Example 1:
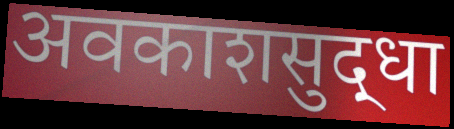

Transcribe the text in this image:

अवकाशसुद्धा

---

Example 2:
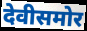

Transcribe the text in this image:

देवीसमोर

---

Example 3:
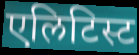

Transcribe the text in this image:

एलिटिस्ट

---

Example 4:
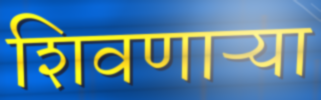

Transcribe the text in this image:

शिवणाऱ्या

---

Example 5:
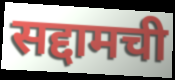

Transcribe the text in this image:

सद्दामची